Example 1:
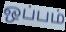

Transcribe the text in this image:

ஒப்பம்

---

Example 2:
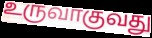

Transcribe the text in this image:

உருவாகுவது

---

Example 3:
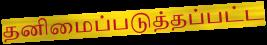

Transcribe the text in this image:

தனிமைப்படுத்தப்பட்ட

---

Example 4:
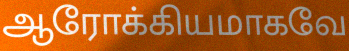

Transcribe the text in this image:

ஆரோக்கியமாகவே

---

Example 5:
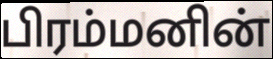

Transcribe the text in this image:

பிரம்மனின்